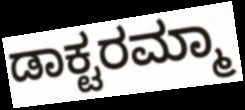
ಡಾಕ್ಟರಮ್ಮಾ